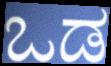
ಒಡ